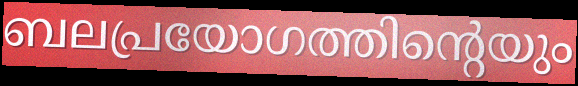
ബലപ്രയോഗത്തിന്റെയും